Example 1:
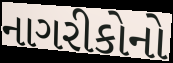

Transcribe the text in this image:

નાગરીકોનો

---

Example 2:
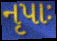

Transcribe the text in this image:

નૃપાઃ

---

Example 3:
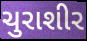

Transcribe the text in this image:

ચુરાશીર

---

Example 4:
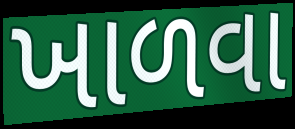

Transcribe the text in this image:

ખાળવા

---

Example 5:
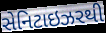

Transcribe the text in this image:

સેનિટાઇઝરથી